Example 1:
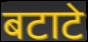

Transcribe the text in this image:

बटाटे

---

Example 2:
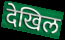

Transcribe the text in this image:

देखिल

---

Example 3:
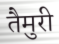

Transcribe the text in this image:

तैमुरी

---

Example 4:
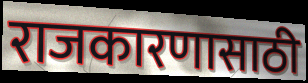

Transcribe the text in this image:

राजकारणासाठी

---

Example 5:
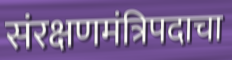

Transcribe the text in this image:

संरक्षणमंत्रिपदाचा